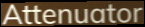
Attenuator